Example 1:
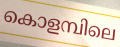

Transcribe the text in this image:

കൊളമ്പിലെ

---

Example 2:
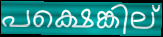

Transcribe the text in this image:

പക്ഷെങ്കില്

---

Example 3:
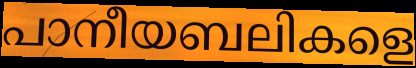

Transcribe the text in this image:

പാനീയബലികളെ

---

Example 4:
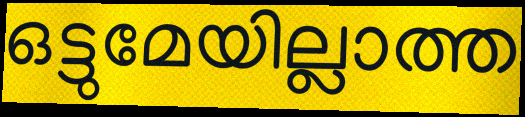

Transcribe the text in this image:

ഒട്ടുമേയില്ലാത്ത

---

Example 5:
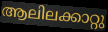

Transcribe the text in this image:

ആലിലക്കാറ്റു